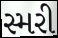
સ્મરી